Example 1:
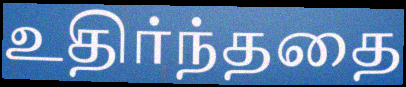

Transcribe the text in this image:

உதிர்ந்ததை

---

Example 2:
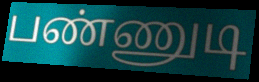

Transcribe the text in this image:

பண்ணுடி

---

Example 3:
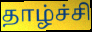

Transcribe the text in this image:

தாழ்ச்சி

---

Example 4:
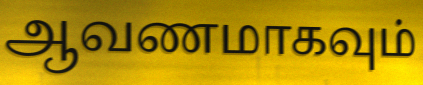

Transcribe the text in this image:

ஆவணமாகவும்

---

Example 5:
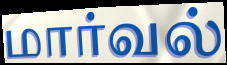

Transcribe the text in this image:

மார்வல்